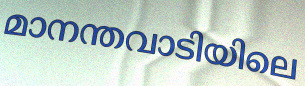
മാനന്തവാടിയിലെ